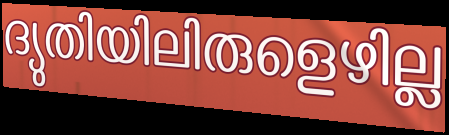
ദ്യുതിയിലിരുളെഴില്ല